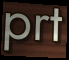
prt